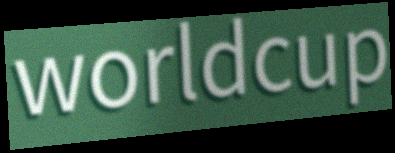
worldcup